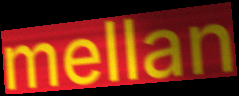
mellan